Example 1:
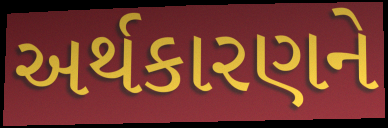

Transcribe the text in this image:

અર્થકારણને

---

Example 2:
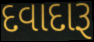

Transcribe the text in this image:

દવાદારૂ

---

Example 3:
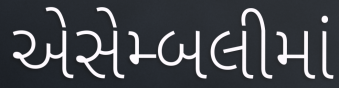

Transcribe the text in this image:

એસેમ્બલીમાં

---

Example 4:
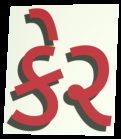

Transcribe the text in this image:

કેર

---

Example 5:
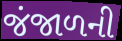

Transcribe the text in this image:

જંજાળની